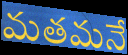
మతమనే